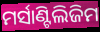
ମର୍ସାଣ୍ଟିଲିଜିମ